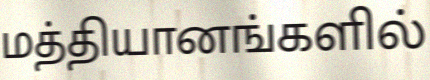
மத்தியானங்களில்